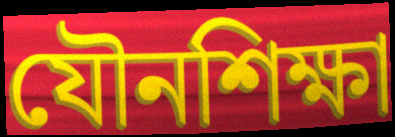
যৌনশিক্ষা